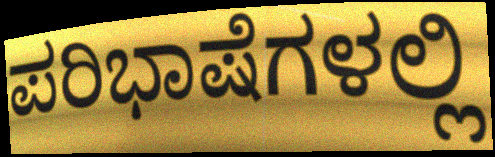
ಪರಿಭಾಷೆಗಳಲ್ಲಿ